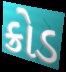
ક્રોડ